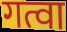
गत्वा